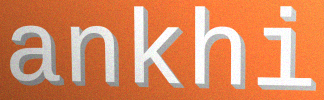
ankhi